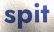
spit